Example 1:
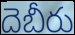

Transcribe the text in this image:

దెబీరు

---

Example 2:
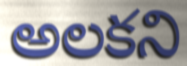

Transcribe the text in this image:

అలకని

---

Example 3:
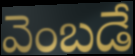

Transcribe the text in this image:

వెంబడే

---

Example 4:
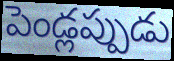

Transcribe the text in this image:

పెండ్లప్పుడు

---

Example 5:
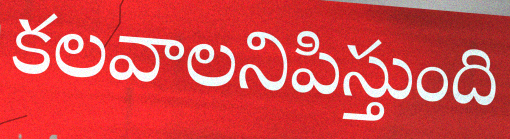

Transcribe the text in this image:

కలవాలనిపిస్తుంది